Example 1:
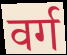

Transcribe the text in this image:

वर्ग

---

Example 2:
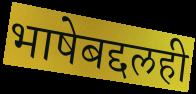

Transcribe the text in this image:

भाषेबद्दलही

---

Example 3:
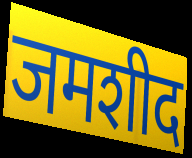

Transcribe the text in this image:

जमशीद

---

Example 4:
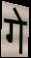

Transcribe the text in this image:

गे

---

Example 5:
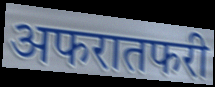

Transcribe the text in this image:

अफरातफरी